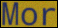
Mor